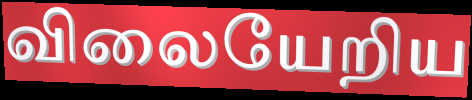
விலையேறிய